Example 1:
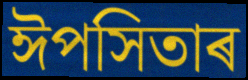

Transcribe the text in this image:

ঈপসিতাৰ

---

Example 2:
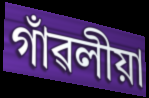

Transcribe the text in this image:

গাঁৱলীয়া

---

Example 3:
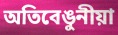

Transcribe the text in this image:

অতিবেঙুনীয়া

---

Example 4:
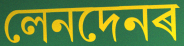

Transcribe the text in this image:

লেনদেনৰ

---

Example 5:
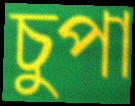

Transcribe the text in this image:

চুপা